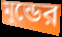
মুন্ডের